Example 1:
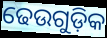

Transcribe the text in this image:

ଢେଉଗୁଡ଼ିକ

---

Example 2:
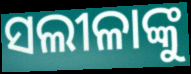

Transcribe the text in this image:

ସଲୀଳାଙ୍କୁ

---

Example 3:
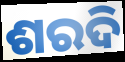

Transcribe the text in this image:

ଶରଦି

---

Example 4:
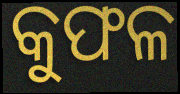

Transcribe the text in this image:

କୁଫଳ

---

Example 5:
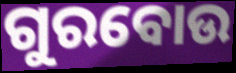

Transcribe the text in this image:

ଗୁରବୋଉ